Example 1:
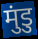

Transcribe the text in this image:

मुंडु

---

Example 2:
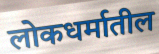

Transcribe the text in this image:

लोकधर्मातील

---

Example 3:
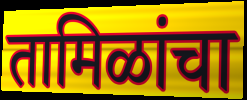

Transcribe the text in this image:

तामिळांचा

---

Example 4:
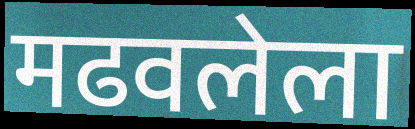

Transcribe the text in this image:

मढवलेला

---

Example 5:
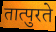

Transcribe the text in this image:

तात्पुरते